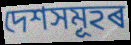
দেশসমূহৰ